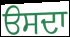
ੳਸਦਾ